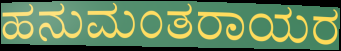
ಹನುಮಂತರಾಯರ